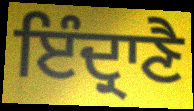
ਇੰਦ੍ਰਾਣੈ